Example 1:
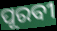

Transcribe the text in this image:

ପୂରବୀ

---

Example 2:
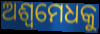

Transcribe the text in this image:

ଅଶ୍ୱମେଧକୁ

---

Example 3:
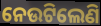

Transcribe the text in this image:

ନେଉଟିଲେଣି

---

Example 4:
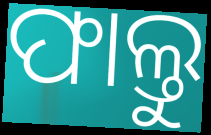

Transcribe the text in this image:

ଫାଲ୍ତୁ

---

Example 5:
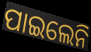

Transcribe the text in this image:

ପାଇଲେନି